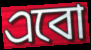
এবো